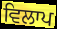
ਵਿਲਾਪ